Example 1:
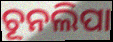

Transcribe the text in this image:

ଚୂନଲିପା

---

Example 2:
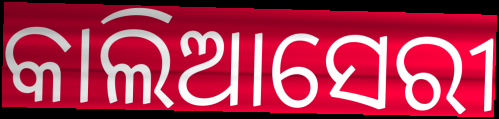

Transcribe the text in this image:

କାଲିଆସେରୀ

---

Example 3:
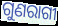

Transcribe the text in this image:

ଗୁଣରାଗୀ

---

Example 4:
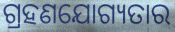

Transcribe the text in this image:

ଗ୍ରହଣଯୋଗ୍ୟତାର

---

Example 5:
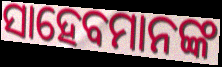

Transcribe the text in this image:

ସାହେବମାନଙ୍କ